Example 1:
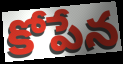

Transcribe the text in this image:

కోపేన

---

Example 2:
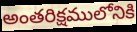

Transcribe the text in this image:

అంతరిక్షములోనికి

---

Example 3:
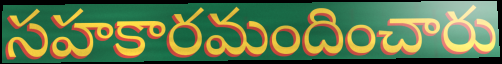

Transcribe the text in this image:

సహకారమందించారు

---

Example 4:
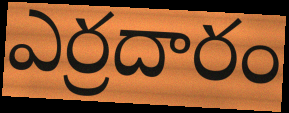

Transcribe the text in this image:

ఎర్రదారం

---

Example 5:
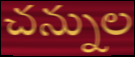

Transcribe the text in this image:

చన్నుల